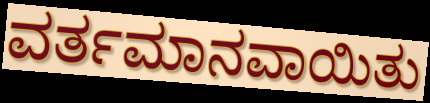
ವರ್ತಮಾನವಾಯಿತು